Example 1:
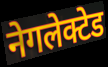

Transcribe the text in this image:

नेगलेक्टेड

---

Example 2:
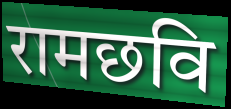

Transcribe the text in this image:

रामछवि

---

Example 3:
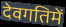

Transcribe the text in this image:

देवगतिमें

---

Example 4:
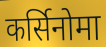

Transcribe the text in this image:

कर्सिनोमा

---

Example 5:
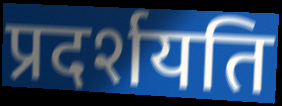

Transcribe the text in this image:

प्रदर्शयति